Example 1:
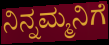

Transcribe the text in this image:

ನಿನ್ನಮ್ಮನಿಗೆ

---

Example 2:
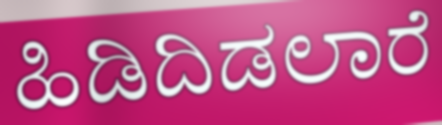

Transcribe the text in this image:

ಹಿಡಿದಿಡಲಾರೆ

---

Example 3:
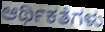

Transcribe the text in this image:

ಆರ್ಥಿಕತೆಗಳು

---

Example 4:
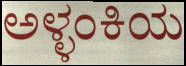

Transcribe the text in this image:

ಅಳ್ಳಂಕಿಯ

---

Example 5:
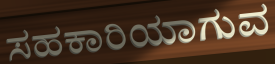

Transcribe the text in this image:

ಸಹಕಾರಿಯಾಗುವ